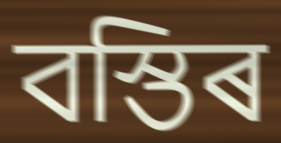
বস্তিৰ